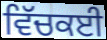
ਵਿੱਚਕਈ